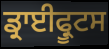
ਡ੍ਰਾਈਫ੍ਰੂਟਸ